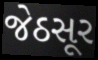
જેઠસૂર